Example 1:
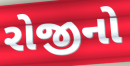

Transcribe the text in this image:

રોજીનો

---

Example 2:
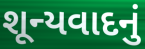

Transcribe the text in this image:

શૂન્યવાદનું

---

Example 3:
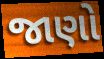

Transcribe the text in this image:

જાણો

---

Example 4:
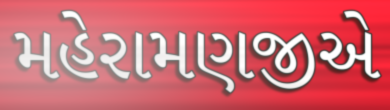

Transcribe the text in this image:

મહેરામણજીએ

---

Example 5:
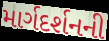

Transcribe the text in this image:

માર્ગદર્શનની